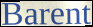
Barent